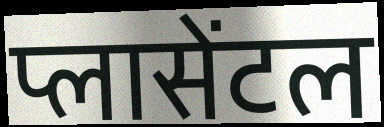
प्लासेंटल